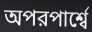
অপরপার্শ্বে